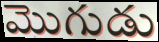
మొగుడు